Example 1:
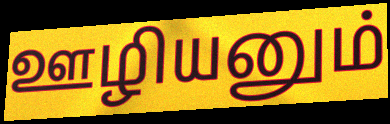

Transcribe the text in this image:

ஊழியனும்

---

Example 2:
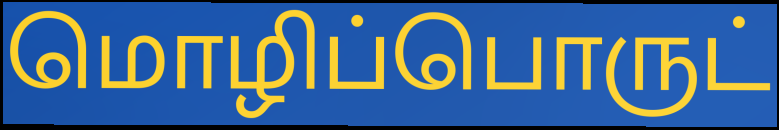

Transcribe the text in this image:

மொழிப்பொருட்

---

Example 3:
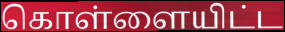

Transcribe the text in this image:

கொள்ளையிட்ட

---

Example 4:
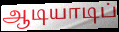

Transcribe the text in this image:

ஆடியாடிப்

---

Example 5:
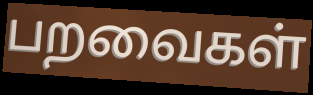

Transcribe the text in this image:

பறவைகள்